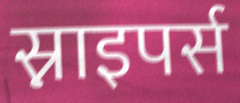
स्नाइपर्स